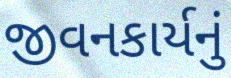
જીવનકાર્યનું